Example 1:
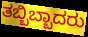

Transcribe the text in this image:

ತಬ್ಬಿಬ್ಬಾದರು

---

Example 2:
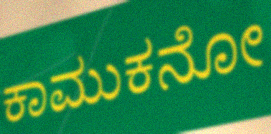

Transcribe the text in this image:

ಕಾಮುಕನೋ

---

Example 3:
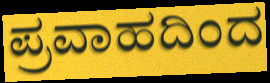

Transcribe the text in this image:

ಪ್ರವಾಹದಿಂದ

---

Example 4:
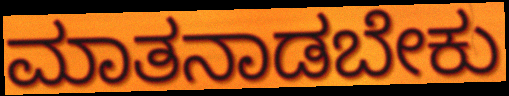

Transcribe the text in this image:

ಮಾತನಾಡಬೇಕು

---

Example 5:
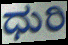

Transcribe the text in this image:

ಧುರಿ